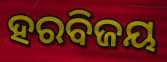
ହରବିଜୟ